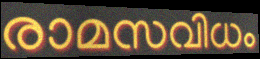
രാമസവിധം